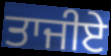
ਤਾਜੀਏ